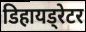
डिहायड्रेटर